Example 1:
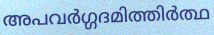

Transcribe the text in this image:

അപവർഗ്ഗദമിത്തിർത്ഥ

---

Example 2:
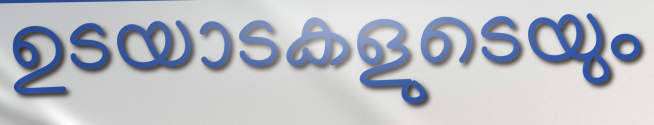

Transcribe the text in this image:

ഉടയാടകളുടെയും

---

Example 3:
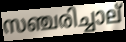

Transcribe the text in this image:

സഞ്ചരിച്ചാല്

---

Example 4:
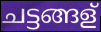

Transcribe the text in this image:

ചട്ടങ്ങള്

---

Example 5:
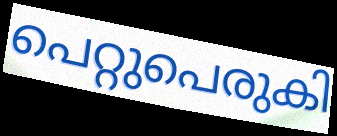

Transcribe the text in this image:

പെറ്റുപെരുകി